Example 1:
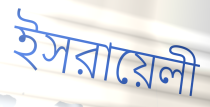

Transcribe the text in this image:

ইসরায়েলী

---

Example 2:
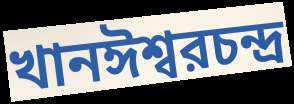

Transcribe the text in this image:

খানঈশ্বরচন্দ্র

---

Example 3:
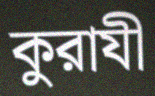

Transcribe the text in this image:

কুরাযী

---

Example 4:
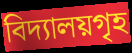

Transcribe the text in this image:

বিদ্যালয়গৃহ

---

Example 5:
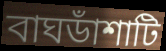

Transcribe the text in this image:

বাঘডাঁশাটি